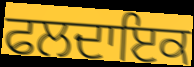
ਫਲਦਾਇਕ